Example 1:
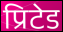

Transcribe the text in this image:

प्रिटेड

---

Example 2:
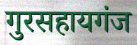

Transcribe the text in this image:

गुरसहायगंज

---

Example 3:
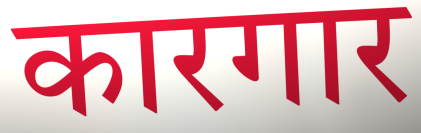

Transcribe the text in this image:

कारगार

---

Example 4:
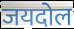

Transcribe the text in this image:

जयदोल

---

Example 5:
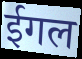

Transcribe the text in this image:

ईगल